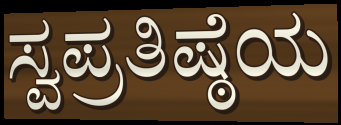
ಸ್ವಪ್ರತಿಷ್ಠೆಯ